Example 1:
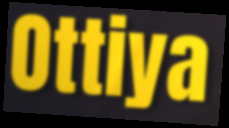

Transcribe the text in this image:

Ottiya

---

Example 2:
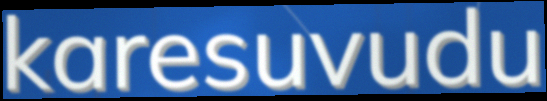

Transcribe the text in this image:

karesuvudu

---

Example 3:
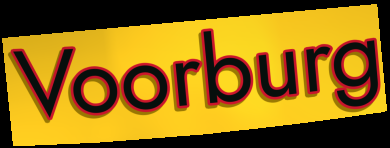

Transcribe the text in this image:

Voorburg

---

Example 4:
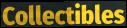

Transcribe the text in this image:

Collectibles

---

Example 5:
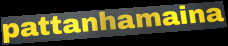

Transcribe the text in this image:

pattanhamaina